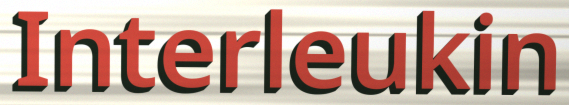
Interleukin